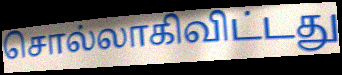
சொல்லாகிவிட்டது